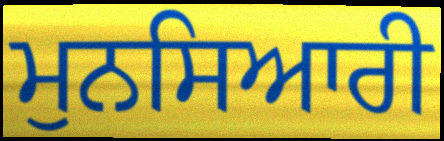
ਮੁਨਸਿਆਰੀ